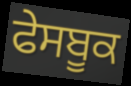
ਫੇਸਬੂਕ